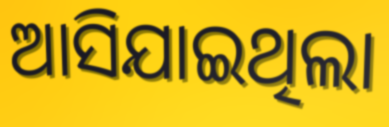
ଆସିଯାଇଥିଲା